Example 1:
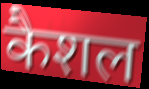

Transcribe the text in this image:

कैशल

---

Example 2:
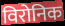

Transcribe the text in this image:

विरोनिक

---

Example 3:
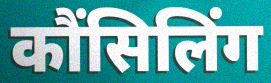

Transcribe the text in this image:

कौंसिलिंग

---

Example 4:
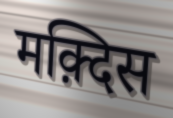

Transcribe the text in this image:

मक़्दिस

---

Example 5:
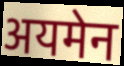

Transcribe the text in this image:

अयमेन